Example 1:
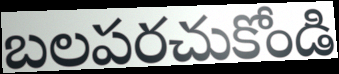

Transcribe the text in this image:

బలపరచుకోండి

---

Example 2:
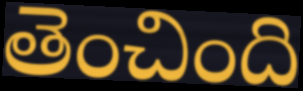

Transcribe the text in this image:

తెంచింది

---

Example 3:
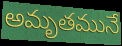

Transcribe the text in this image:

అమృతమునే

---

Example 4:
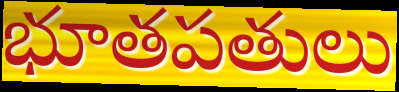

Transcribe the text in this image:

భూతపతులు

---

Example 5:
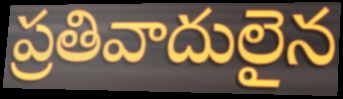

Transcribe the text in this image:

ప్రతివాదులైన